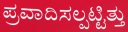
ಪ್ರವಾದಿಸಲ್ಪಟ್ಟಿತ್ತು